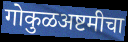
गोकुळअष्टमीचा